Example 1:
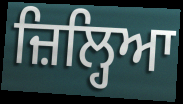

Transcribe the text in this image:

ਜ਼ਿਲ੍ਹਿਆ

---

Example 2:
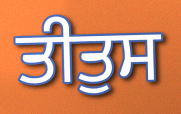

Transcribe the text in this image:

ਤੀਤੁਸ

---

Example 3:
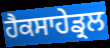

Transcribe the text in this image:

ਹੈਕਸਾਹੇਡ੍ਰਲ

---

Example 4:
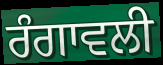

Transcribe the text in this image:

ਰੰਗਾਵਲੀ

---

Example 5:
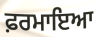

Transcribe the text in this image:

ਫ਼ਰਮਾਇਆ